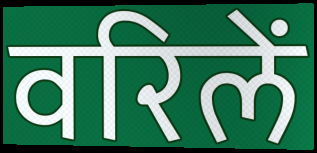
वरिलें